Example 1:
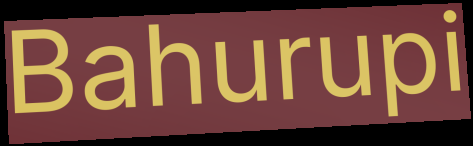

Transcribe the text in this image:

Bahurupi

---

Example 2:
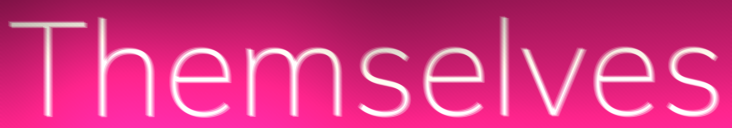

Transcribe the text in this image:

Themselves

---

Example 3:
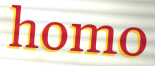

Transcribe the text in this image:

homo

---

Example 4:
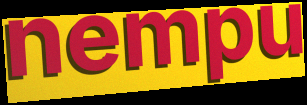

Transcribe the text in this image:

nempu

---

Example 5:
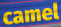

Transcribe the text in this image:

camel